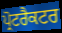
ਪ੍ਰੋਟਰੈਕਟਰ